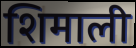
शिमाली